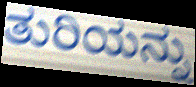
ತುರಿಯನ್ನು